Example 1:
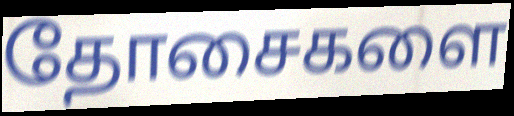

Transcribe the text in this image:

தோசைகளை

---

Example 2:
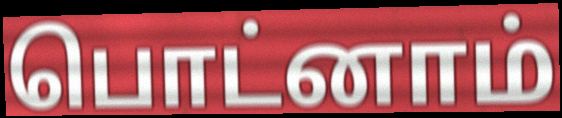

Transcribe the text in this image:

பொட்னாம்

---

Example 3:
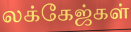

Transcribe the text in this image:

லக்கேஜ்கள்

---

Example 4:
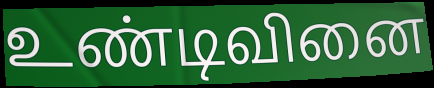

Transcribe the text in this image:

உண்டிவினை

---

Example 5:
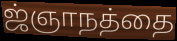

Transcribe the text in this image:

ஜ்ஞாநத்தை